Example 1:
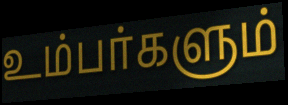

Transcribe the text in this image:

உம்பர்களும்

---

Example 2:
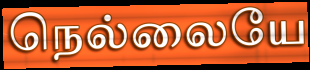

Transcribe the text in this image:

நெல்லையே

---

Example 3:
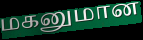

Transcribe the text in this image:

மகனுமான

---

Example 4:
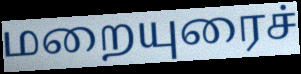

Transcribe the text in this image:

மறையுரைச்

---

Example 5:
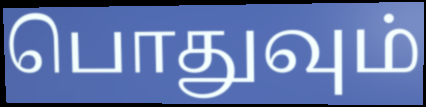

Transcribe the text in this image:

பொதுவும்